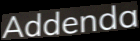
Addenda